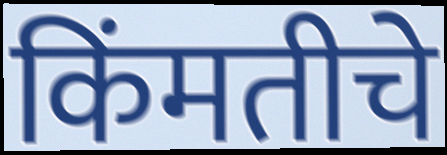
किंमतीचे